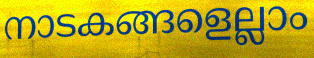
നാടകങ്ങളെല്ലാം